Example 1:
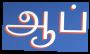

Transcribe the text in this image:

ஆப்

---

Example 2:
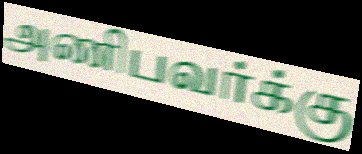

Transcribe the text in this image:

அணிபவர்க்கு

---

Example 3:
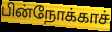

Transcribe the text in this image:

பின்நோக்காச்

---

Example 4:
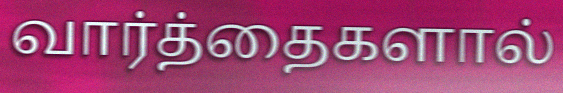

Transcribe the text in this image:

வார்த்தைகளால்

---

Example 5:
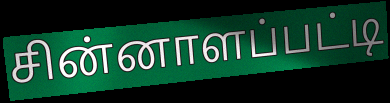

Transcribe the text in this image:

சின்னாளப்பட்டி